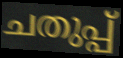
ചതുപ്പ്